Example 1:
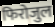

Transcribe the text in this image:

फिरोजुल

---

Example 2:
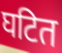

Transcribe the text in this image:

घटित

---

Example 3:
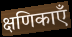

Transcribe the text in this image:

क्षणिकाएँ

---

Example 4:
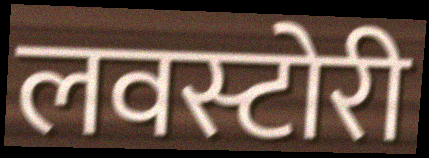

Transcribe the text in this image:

लवस्‍टोरी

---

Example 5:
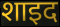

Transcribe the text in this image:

शाइद